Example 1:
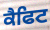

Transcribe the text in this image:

ਕੈਫਿਟ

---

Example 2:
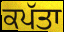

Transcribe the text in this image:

ਕਪੱਤਾ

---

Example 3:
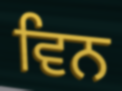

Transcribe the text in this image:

ਵਿਨ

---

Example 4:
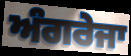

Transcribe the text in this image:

ਅੰਗਰੇਜਾ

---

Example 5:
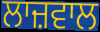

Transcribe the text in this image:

ਲਾਜ਼ਵਾਲ